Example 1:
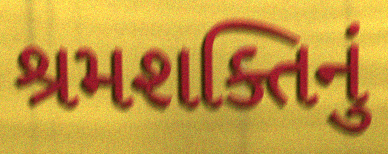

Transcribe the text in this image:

શ્રમશક્તિનું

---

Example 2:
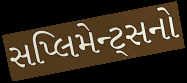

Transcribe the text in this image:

સપ્લિમેન્ટ્સનો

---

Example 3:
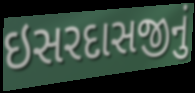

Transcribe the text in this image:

ઇસરદાસજીનું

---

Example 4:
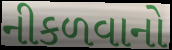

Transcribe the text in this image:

નીકળવાનો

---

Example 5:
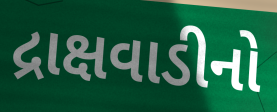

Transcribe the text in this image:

દ્રાક્ષવાડીનો